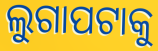
ଲୁଗାପଟାକୁ